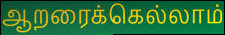
ஆறரைக்கெல்லாம்